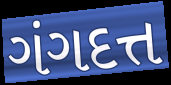
ગંગદત્ત